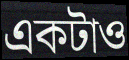
একটাও